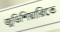
জুডিশিয়ারিতে